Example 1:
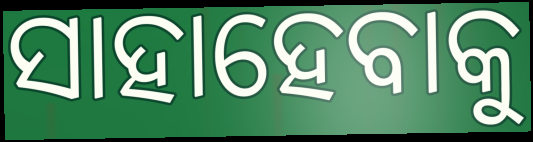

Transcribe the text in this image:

ସାହାହେବାକୁ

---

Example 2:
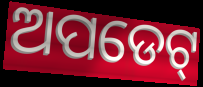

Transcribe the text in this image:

ଅପଡେଟ୍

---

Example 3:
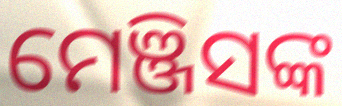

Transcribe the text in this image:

ମେଞ୍ଜିସଙ୍କ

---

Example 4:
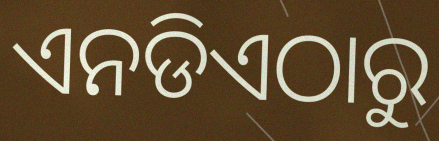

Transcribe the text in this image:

ଏନଡିଏଠାରୁ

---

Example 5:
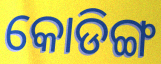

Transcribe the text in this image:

କୋଡିଙ୍ଗ